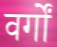
वर्गों